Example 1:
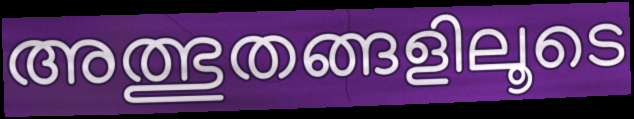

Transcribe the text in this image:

അത്ഭുതങ്ങളിലൂടെ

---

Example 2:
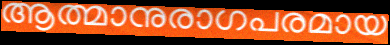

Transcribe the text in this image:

ആത്മാനുരാഗപരമായ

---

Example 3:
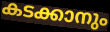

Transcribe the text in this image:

കടക്കാനും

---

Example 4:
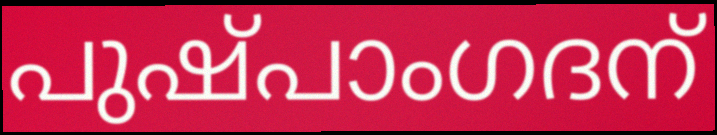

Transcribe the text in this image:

പുഷ്പാംഗദന്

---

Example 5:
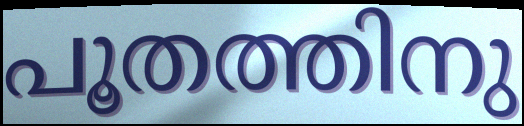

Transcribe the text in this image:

പൂതത്തിനു